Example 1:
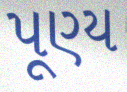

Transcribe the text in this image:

પૂણ્ય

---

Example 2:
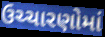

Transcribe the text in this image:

ઉચ્ચારણોમાં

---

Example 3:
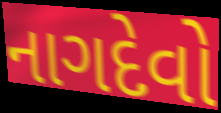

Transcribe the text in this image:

નાગદેવો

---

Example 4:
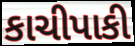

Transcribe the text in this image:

કાચીપાકી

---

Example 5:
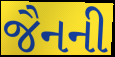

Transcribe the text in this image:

જૈનની